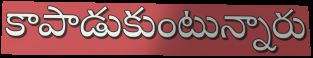
కాపాడుకుంటున్నారు